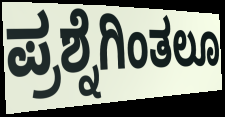
ಪ್ರಶ್ನೆಗಿಂತಲೂ